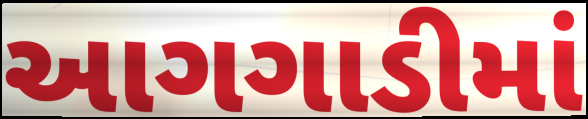
આગગાડીમાં